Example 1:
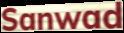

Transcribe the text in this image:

Sanwad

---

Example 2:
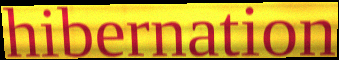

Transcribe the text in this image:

hibernation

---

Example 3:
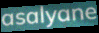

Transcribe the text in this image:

asalyane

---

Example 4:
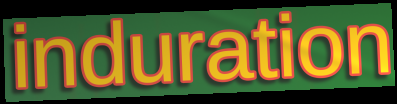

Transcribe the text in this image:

induration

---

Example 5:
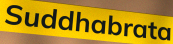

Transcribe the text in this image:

Suddhabrata